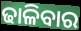
ଢାଳିବାର